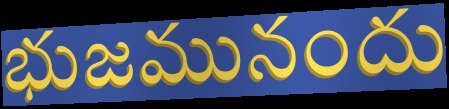
భుజమునందు